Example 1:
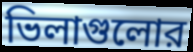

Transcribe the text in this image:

ভিলাগুলোর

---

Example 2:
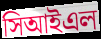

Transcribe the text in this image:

সিআইএল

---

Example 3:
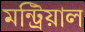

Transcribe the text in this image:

মন্ট্রিয়াল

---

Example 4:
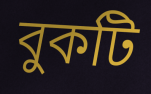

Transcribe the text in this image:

বুকটি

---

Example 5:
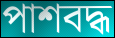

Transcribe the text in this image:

পাশবদ্ধ